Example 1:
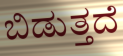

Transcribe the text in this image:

ಬಿಡುತ್ತದೆ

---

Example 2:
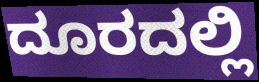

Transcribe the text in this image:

ದೂರದಲ್ಲಿ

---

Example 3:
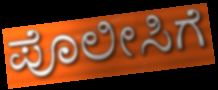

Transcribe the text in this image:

ಪೊಲೀಸಿಗೆ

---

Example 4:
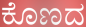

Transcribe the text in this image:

ಕೊಣದ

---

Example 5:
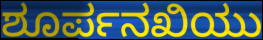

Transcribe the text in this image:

ಶೂರ್ಪನಖಿಯು